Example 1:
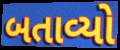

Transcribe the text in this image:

બતાવ્યો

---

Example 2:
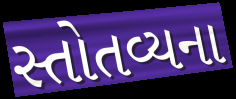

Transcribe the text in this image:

સ્તોતવ્યના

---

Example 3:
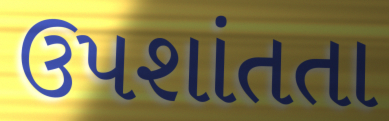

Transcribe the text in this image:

ઉપશાંતતા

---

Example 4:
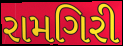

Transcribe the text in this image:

રામગિરી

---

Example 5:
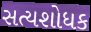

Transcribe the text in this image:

સત્યશોધક